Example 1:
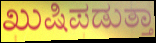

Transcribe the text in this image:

ಖುಷಿಪಡುತ್ತಾ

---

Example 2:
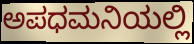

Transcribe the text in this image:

ಅಪಧಮನಿಯಲ್ಲಿ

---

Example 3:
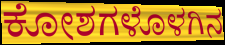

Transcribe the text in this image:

ಕೋಶಗಳೊಳಗಿನ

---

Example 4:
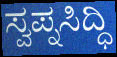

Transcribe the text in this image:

ಸ್ವಪ್ನಸಿದ್ಧಿ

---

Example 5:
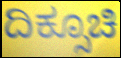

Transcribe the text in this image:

ದಿಕ್ಸೂಚಿ